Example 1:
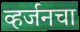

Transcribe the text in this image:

व्हर्जनचा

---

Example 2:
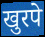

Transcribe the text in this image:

खुरपे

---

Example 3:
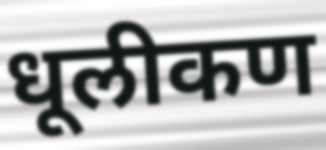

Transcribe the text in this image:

धूलीकण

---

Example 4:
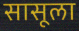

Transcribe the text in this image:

सासूला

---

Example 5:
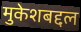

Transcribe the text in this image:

मुकेशबद्दल